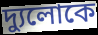
দ্যুলোকে